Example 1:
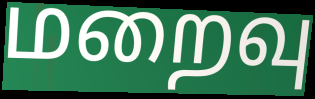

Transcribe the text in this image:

மறைவு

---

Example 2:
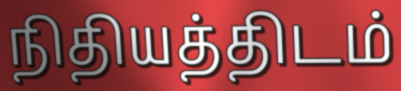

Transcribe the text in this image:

நிதியத்திடம்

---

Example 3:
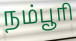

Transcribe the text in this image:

நம்பூரி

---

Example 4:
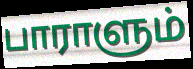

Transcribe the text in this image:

பாராளும்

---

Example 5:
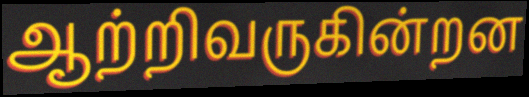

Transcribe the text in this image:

ஆற்றிவருகின்றன